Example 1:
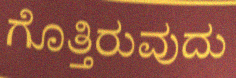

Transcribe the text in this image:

ಗೊತ್ತಿರುವುದು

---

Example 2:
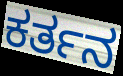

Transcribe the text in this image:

ಕರ್ತನ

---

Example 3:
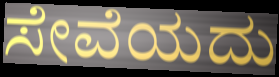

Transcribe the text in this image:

ಸೇವೆಯದು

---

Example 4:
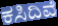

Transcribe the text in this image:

ಕಸಿದಿವೆ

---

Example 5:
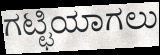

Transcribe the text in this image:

ಗಟ್ಟಿಯಾಗಲು